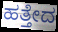
ಹತ್ತೇದ